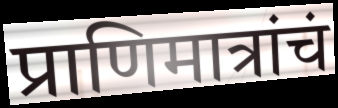
प्राणिमात्रांचं